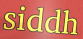
siddh